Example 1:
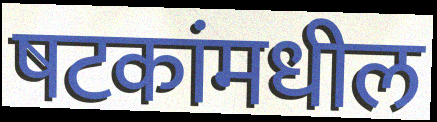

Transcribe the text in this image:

षटकांमधील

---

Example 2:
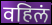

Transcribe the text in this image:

वहिलं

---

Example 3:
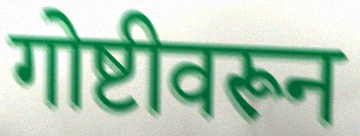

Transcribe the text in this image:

गोष्टीवरून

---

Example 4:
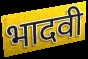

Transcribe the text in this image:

भादवी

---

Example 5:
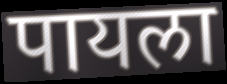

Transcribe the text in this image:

पायला